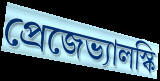
প্রেজেভ্যালস্কি